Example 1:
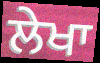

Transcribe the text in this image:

ਲੇਖਾ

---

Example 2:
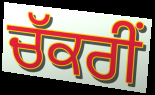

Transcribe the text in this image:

ਚੱਕਰੀਂ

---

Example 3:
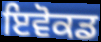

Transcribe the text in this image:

ਇਵੋਕਡ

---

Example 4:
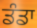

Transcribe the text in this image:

ਡੰਡਾ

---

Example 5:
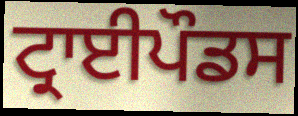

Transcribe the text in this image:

ਟ੍ਰਾਈਪੌਡਸ